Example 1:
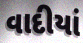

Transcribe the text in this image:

વાદીયાં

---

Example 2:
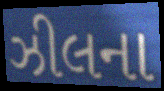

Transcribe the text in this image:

ઝીલના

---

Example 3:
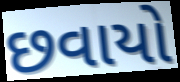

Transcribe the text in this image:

છવાયો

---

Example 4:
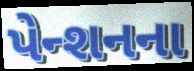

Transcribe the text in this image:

પેન્શનના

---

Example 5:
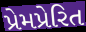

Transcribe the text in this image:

પ્રેમપ્રેરિત